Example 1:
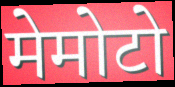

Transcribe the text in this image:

मेमोटो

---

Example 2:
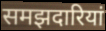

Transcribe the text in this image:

समझदारियां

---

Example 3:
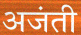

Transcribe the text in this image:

अजंती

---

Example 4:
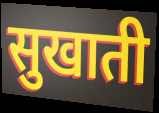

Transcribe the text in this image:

सुखाती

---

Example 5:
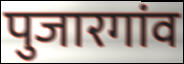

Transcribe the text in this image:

पुजारगांव